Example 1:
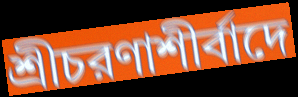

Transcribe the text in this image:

শ্রীচরণাশীর্বাদে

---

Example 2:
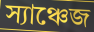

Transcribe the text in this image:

স্যাঞ্চেজ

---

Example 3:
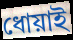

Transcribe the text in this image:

ধোয়াই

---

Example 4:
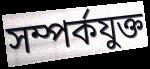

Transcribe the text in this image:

সম্পর্কযুক্ত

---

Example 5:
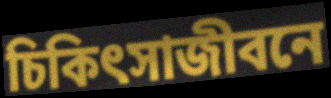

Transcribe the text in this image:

চিকিৎসাজীবনে